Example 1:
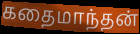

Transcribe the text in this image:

கதைமாந்தன்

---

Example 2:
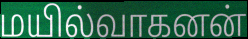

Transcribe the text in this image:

மயில்வாகனன்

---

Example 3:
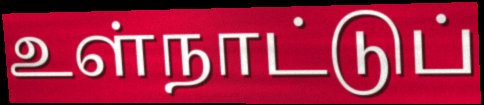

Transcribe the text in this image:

உள்நாட்டுப்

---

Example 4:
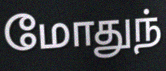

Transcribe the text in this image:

மோதுந்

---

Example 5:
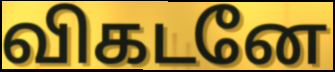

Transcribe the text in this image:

விகடனே